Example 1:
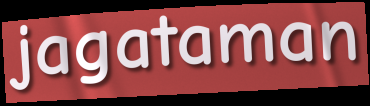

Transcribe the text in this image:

jagataman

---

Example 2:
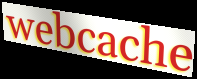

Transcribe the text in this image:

webcache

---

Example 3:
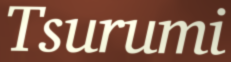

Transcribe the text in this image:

Tsurumi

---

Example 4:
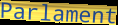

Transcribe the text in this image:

Parlament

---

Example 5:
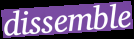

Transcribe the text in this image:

dissemble